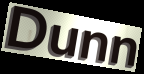
Dunn